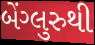
બેંગ્લુરુથી